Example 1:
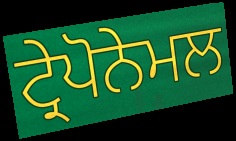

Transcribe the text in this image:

ਟ੍ਰੇਪੋਨੇਮਲ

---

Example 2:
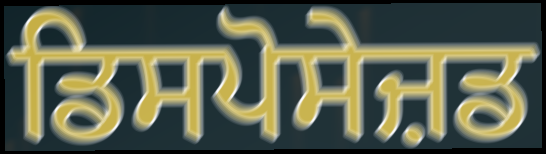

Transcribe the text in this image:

ਡਿਸਪੋਸੇਜ਼ਡ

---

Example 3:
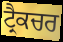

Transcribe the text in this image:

ਟ੍ਰੈਕਚਰ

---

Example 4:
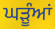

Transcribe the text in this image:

ਘੜੂੰਆਂ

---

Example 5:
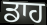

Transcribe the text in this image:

ਡਾਹ